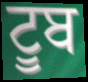
ਟੂਬ